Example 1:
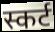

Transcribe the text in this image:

स्कर्ट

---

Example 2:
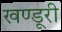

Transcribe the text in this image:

खण्डूरी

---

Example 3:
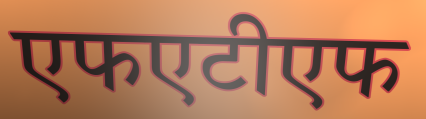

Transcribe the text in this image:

एफएटीएफ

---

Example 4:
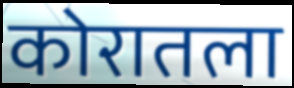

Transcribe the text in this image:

कोरातला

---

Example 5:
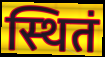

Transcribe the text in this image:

स्थितं